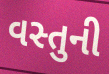
વસ્તુની